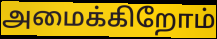
அமைக்கிறோம்